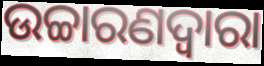
ଉଚ୍ଚାରଣଦ୍ଵାରା